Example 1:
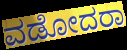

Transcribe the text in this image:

ವಡೋದರಾ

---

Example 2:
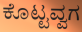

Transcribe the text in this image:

ಕೊಟ್ಟವ್ವಗ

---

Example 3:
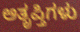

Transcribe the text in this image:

ಅತೃಪ್ತಿಗಳು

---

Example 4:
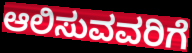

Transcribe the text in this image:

ಆಲಿಸುವವರಿಗೆ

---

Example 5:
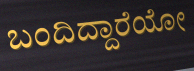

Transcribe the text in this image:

ಬಂದಿದ್ದಾರೆಯೋ